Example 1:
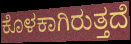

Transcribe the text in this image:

ಕೊಳಕಾಗಿರುತ್ತದೆ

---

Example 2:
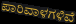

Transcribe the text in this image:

ಪಾರಿವಾಳಗಳಿವೆ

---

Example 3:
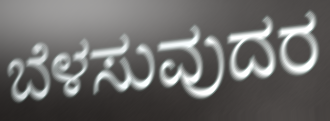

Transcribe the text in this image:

ಬೆಳಸುವುದರ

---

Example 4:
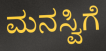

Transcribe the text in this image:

ಮನಸ್ವಿಗೆ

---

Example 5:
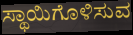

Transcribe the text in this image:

ಸ್ಥಾಯಿಗೊಳಿಸುವ